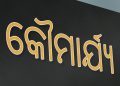
କୌମାର୍ଯ୍ୟ